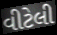
વીટેલી